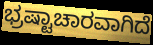
ಭ್ರಷ್ಟಾಚಾರವಾಗಿದೆ